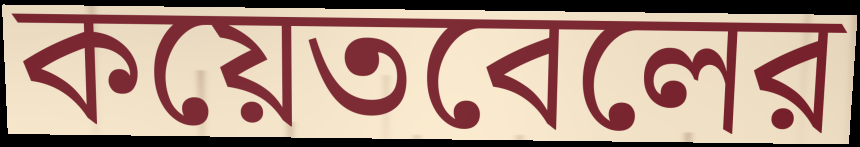
কয়েতবেলের